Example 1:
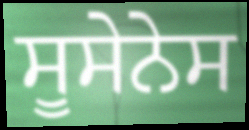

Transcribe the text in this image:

ਸੂਸੇਨੇਸ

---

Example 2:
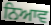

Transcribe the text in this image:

ਨਿਆਵ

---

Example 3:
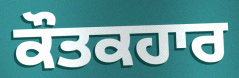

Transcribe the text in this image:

ਕੌਤਕਹਾਰ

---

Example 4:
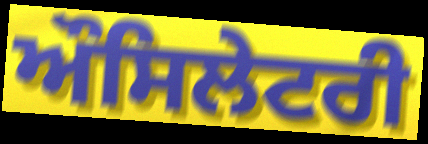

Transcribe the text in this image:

ਔਸਿਲੇਟਰੀ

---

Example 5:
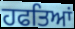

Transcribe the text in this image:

ਹਫਤਿਆਂ